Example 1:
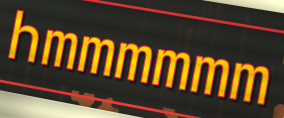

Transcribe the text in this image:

hmmmmmm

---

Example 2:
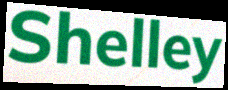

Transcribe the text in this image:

Shelley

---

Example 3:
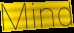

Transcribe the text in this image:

Mind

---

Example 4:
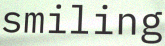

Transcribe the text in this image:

smiling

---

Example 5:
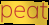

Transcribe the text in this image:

peat